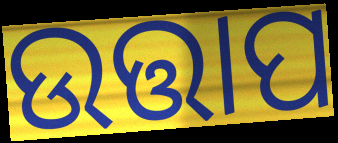
ଉତ୍ତାପ